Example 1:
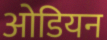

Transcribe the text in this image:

ओडियन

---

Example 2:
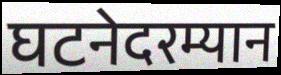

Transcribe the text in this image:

घटनेदरम्यान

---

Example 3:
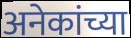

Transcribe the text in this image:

अनेकांच्या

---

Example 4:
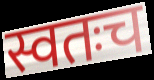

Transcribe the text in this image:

स्वतःच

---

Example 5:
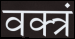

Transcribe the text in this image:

वक्त्रं